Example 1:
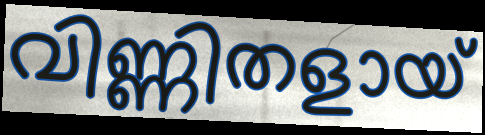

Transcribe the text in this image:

വിണ്ണിതളായ്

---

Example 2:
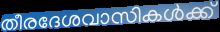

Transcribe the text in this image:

തീരദേശവാസികൾക്ക്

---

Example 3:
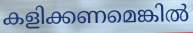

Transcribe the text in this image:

കളിക്കണമെങ്കിൽ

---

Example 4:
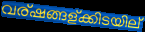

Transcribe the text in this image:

വര്ഷങ്ങള്ക്കിടയില്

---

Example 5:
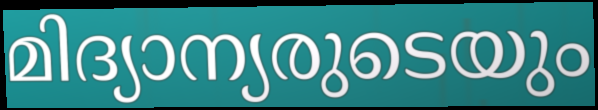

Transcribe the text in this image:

മിദ്യാന്യരുടെയും